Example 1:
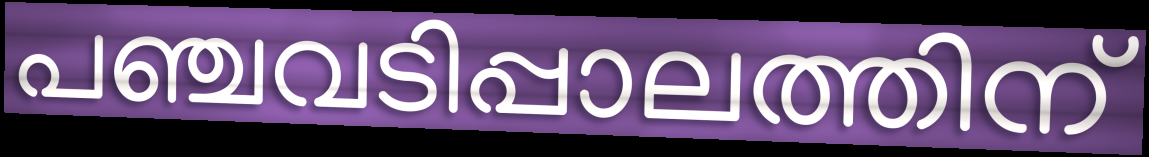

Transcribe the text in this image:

പഞ്ചവടിപ്പാലത്തിന്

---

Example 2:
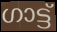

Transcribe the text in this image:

ഗാട്ട്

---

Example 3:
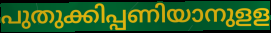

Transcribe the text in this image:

പുതുക്കിപ്പണിയാനുളള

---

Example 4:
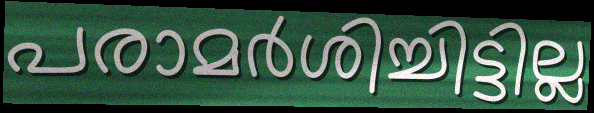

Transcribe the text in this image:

പരാമർശിച്ചിട്ടില്ല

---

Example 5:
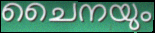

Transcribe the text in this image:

ചൈനയും